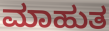
ಮಾಹುತ